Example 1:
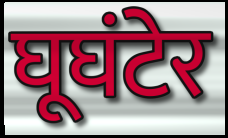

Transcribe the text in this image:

घूघंटेर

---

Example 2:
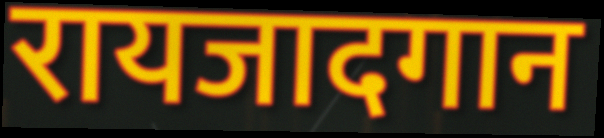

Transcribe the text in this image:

रायजादगान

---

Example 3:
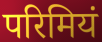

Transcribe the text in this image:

परिमियं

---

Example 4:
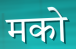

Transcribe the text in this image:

मको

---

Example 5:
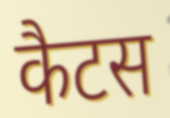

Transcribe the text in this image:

कैटस